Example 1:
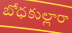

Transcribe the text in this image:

బోధకుల్లారా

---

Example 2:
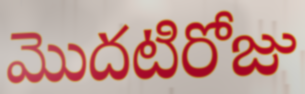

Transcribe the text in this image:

మొదటిరోజు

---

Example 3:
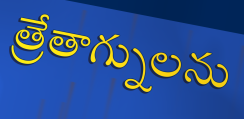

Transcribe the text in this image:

త్రేతాగ్నులను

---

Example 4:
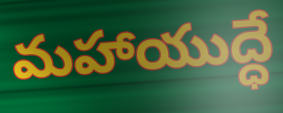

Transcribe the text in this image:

మహాయుద్ధే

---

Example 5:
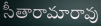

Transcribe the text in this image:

సీతారామారావు